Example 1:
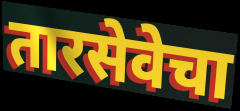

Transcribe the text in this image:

तारसेवेचा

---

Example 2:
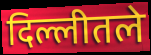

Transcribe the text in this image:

दिल्लीतले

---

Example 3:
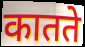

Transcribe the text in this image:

कातते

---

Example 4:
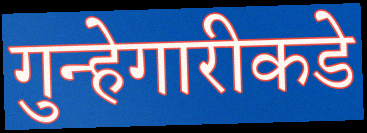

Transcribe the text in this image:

गुन्हेगारीकडे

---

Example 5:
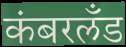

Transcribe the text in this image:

कंबरलँड